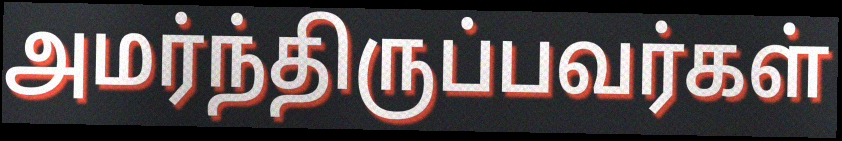
அமர்ந்திருப்பவர்கள்